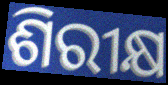
ଶିରୀକ୍ଷ